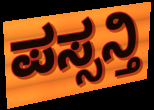
ಪಸ್ಸನ್ತಿ